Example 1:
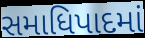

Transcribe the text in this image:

સમાધિપાદમાં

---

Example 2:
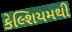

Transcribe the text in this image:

કેલ્શિયમથી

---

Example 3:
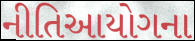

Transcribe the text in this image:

નીતિઆયોગના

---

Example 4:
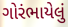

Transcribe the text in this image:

ગોરંભાયેલું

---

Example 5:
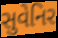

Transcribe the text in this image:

સુવેનિર